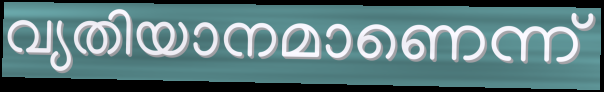
വ്യതിയാനമാണെന്ന്